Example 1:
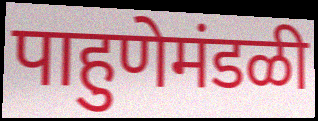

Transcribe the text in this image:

पाहुणेमंडळी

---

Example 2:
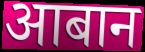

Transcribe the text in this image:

आबान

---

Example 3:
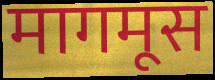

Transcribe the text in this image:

मागमूस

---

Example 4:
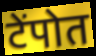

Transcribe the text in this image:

टेंपोत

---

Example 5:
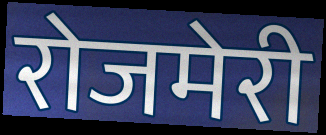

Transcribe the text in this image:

रोजमेरी